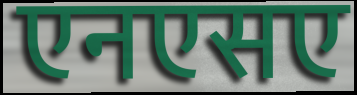
एनएसए